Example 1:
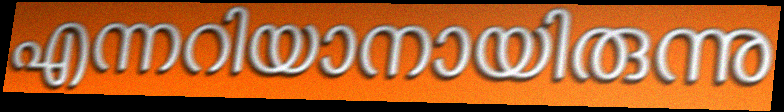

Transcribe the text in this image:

എന്നറിയാനായിരുന്നു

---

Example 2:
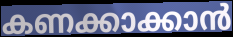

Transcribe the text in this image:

കണക്കാക്കാൻ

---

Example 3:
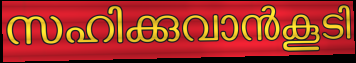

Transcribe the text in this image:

സഹിക്കുവാൻകൂടി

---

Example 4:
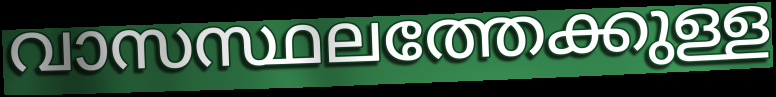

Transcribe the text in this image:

വാസസ്ഥലത്തേക്കുള്ള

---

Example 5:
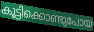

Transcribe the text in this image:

കൂട്ടിക്കൊണ്ടുപോയ